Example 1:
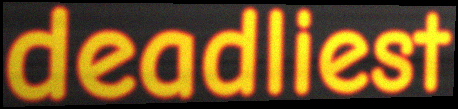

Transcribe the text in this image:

deadliest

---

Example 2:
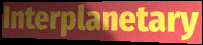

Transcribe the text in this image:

Interplanetary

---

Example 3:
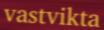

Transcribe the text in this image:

vastvikta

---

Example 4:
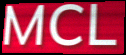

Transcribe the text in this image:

MCL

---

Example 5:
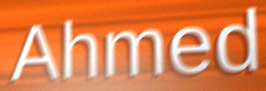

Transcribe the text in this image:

Ahmed